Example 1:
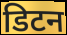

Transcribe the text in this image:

डिटन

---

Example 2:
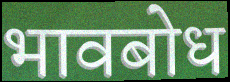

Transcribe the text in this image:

भावबोध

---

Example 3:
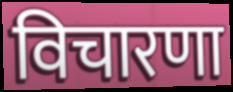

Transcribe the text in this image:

विचारणा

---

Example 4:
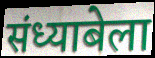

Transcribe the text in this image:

संध्याबेला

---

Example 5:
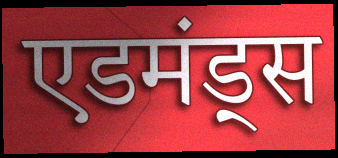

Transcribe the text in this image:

एडमंड्स